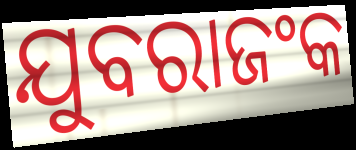
ଯୁବରାଜଂକ